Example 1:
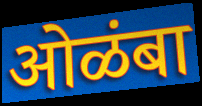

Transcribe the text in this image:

ओळंबा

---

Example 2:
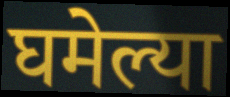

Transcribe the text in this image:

घमेल्या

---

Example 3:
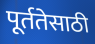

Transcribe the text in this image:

पूर्ततेसाठी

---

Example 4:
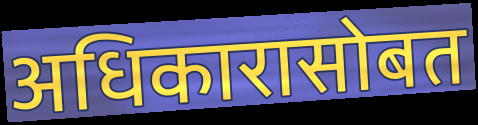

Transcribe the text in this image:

अधिकारासोबत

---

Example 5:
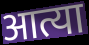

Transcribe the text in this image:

आत्या